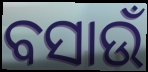
ବସାଉଁ